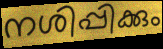
നശിപ്പിക്കും